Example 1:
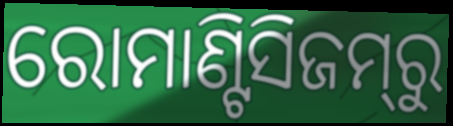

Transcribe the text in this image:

ରୋମାଣ୍ଟିସିଜମ୍‌ରୁ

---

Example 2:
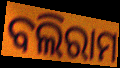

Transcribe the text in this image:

ବଲିରାମ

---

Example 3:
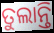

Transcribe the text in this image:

ତୁଲାନ୍ତି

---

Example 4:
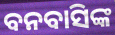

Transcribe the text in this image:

ବନବାସିଙ୍କ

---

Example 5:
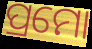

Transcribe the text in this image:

ପ୍ରମୋ